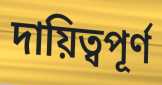
দায়িত্বপূর্ণ